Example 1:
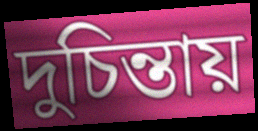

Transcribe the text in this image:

দুচিন্তায়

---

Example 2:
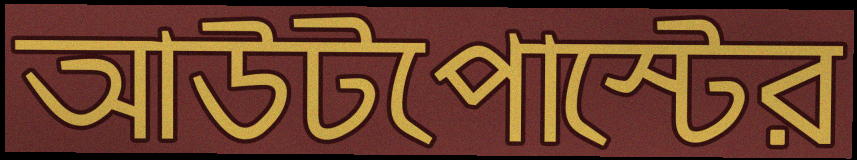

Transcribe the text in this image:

আউটপোস্টের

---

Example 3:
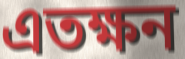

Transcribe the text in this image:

এতক্ষন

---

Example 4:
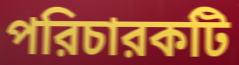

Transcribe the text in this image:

পরিচারকটি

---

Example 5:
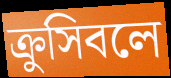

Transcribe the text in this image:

ক্রুসিবলে